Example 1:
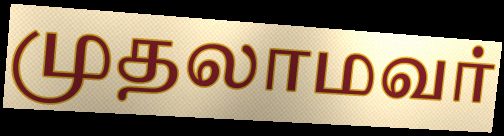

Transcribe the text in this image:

முதலாமவர்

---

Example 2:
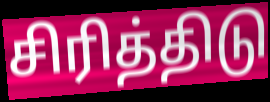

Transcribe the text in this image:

சிரித்திடு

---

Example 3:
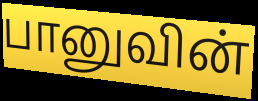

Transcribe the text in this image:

பானுவின்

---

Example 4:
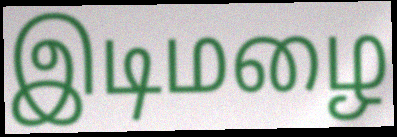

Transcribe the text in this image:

இடிமழை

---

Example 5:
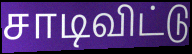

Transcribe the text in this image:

சாடிவிட்டு